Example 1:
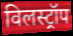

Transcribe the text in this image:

विलस्ट्रॉप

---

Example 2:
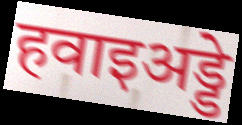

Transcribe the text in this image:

हवाइअड्डे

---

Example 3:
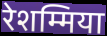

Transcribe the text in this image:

रेशम्मिया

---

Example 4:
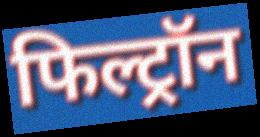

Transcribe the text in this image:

फिल्ट्रॉन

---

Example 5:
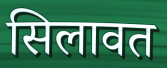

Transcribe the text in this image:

सिलावत